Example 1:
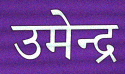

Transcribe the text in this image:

उमेन्द्र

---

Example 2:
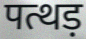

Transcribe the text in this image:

पत्थड़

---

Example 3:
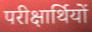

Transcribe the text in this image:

परीक्षार्थियों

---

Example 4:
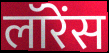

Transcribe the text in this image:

लॉरेंस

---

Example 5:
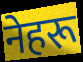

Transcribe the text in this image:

नेहरू